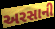
અરસાની